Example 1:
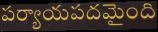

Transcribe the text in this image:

పర్యాయపదమైంది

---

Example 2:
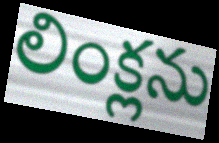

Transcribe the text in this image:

లింక్లను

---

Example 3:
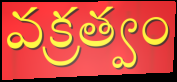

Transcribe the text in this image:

వక్రత్వం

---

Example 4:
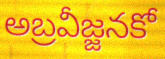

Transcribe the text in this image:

అబ్రవీజ్జనకో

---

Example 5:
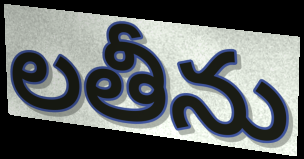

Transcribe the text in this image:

లతీను